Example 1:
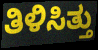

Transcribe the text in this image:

ತಿಳಿಸಿತ್ತು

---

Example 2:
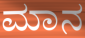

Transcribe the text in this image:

ಮಾನ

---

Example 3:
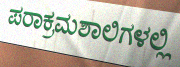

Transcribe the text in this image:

ಪರಾಕ್ರಮಶಾಲಿಗಳಲ್ಲಿ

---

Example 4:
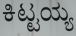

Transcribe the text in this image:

ಕಿಟ್ಟಯ್ಯ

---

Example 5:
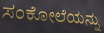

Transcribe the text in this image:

ಸಂಕೋಲೆಯನ್ನು